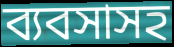
ব্যবসাসহ